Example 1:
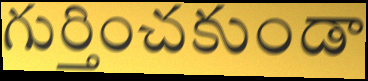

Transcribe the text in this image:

గుర్తించకుండా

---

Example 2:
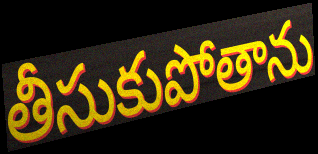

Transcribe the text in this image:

తీసుకుపోతాను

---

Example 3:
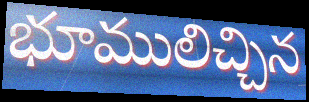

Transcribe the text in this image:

భూములిచ్చిన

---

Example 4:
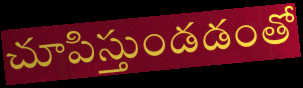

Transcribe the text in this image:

చూపిస్తుండడంతో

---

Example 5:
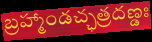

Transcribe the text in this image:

బ్రహ్మాండచ్ఛత్రదణ్డః